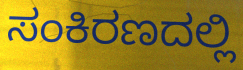
ಸಂಕಿರಣದಲ್ಲಿ